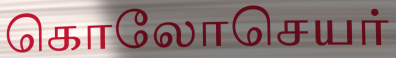
கொலோசெயர்